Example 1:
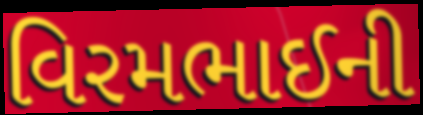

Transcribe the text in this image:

વિરમભાઈની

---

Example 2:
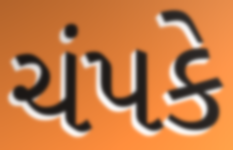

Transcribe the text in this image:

ચંપકે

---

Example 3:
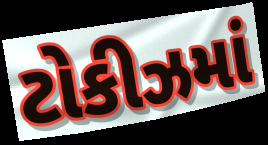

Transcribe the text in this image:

ટોકીઝમાં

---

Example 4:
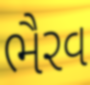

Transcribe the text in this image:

ભૈરવ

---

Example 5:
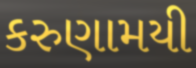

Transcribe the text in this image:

કરુણામયી